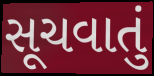
સૂચવાતું